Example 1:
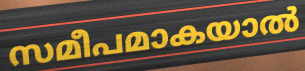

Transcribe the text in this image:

സമീപമാകയാൽ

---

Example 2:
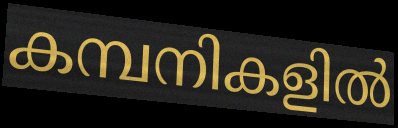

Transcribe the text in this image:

കമ്പനികളിൽ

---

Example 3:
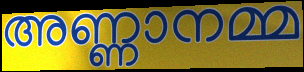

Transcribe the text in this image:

അണ്ണാനമ്മ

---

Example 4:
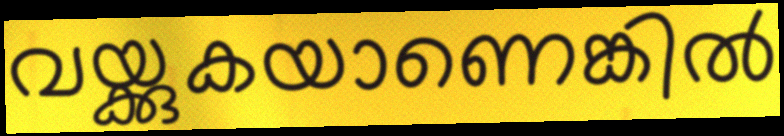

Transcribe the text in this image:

വയ്ക്കുകയാണെങ്കിൽ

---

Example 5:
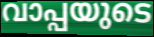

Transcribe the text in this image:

വാപ്പയുടെ